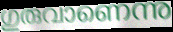
ഗുരുവാണെന്നു